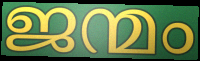
ജന്മം